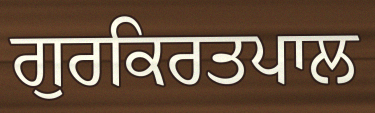
ਗੁਰਕਿਰਤਪਾਲ